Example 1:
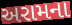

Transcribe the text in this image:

અરામના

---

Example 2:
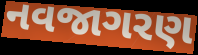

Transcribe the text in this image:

નવજાગરણ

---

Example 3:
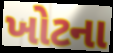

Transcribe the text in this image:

ખોટના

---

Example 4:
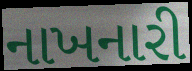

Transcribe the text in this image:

નાખનારી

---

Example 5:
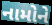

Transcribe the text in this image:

નામોને